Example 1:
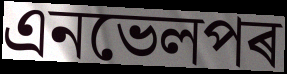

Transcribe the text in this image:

এনভেলপৰ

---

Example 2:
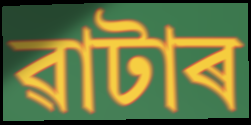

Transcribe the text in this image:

ৱাটাৰ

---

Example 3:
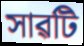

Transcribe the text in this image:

সাৱটি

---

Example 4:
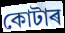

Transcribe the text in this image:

কোটাৰ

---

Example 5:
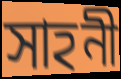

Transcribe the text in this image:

সাহনী